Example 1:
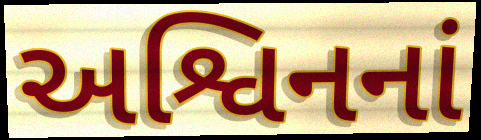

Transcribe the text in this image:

અશ્વિનનાં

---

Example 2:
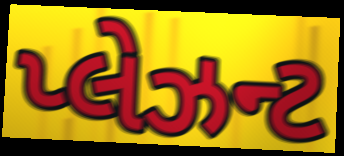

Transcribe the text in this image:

પ્લેઝન્ટ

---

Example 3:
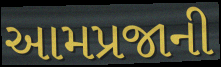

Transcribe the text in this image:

આમપ્રજાની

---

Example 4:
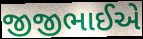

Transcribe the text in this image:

જીજીભાઈએ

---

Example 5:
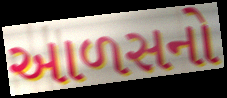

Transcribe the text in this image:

આળસનો